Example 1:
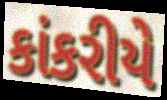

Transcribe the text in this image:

કાંકરીયે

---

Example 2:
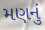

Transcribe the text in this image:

મણનું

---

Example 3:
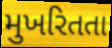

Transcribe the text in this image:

મુખરિતતા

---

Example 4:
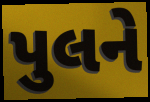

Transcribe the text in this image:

પુલને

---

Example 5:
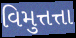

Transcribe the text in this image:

વિમુત્તત્તા